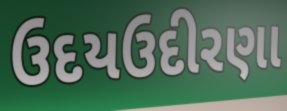
ઉદયઉદીરણા